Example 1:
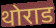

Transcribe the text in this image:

थोराड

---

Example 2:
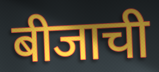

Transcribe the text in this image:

बीजाची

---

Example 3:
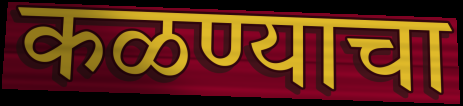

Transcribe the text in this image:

कळण्याचा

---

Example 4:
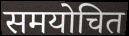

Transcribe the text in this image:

समयोचित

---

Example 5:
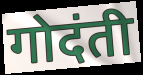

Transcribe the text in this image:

गोदंती